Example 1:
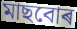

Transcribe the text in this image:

মাছবোৰ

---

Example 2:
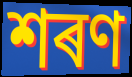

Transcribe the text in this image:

শৰণ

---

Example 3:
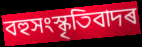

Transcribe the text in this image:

বহুসংস্কৃতিবাদৰ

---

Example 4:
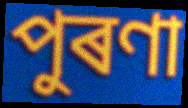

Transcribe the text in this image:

পুৰণা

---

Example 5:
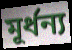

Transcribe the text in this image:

মূৰ্ধন্য